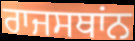
ਰਾਜਸਥਾਂਨ